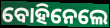
ବୋହିନେଲେ